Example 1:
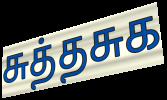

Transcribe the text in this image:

சுத்தசுக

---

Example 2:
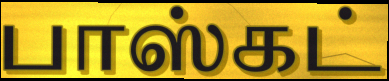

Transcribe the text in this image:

பாஸ்கட்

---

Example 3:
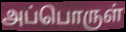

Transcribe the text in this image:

அப்பொருள்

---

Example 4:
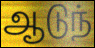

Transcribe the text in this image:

ஆடுந்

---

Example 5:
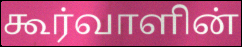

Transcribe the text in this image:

கூர்வாளின்